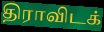
திராவிடக்